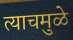
त्याचमुळे